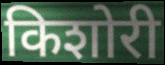
किशोरी